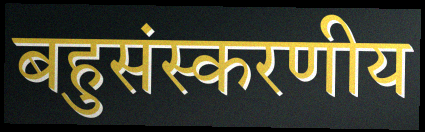
बहुसंस्करणीय